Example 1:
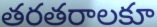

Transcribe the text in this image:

తరతరాలకూ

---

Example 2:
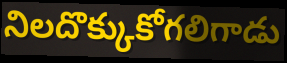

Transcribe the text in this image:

నిలదొక్కుకోగలిగాడు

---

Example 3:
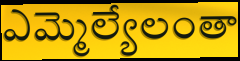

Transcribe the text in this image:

ఎమ్మెల్యేలంతా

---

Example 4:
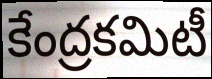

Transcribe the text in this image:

కేంద్రకమిటీ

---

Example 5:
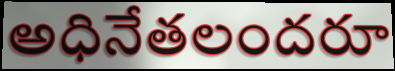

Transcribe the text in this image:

అధినేతలందరూ